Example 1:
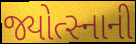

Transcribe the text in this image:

જ્યોત્સ્નાની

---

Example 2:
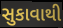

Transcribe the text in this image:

સુકાવાથી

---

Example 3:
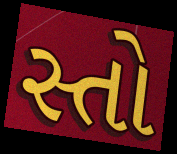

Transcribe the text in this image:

સ્તો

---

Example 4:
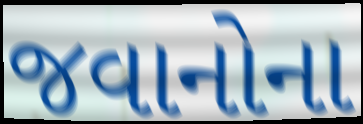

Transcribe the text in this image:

જવાનોના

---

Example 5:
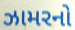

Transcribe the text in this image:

ઝામરનો